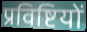
प्रविष्टियों